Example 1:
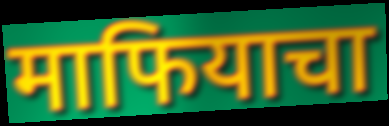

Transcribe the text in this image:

माफियाचा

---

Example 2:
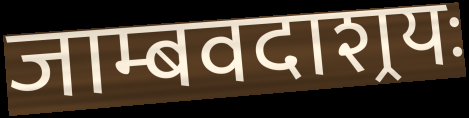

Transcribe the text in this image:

जाम्बवदाश्रयः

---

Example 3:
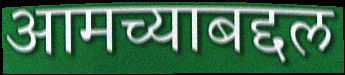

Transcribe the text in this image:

आमच्याबद्दल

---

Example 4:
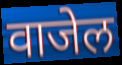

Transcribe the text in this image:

वाजेल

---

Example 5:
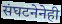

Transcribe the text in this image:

संघटनेनेही